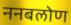
ननबलोण